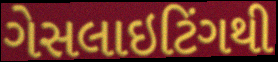
ગેસલાઇટિંગથી